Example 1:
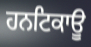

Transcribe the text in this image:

ਹਨਟਿਕਾਊ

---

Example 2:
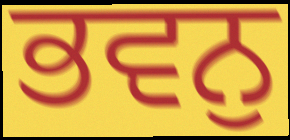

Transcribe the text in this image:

ਭਵਨੁ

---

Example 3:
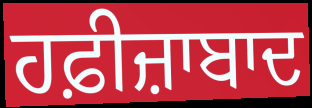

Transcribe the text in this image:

ਹਫ਼ੀਜ਼ਾਬਾਦ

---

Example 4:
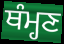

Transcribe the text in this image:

ਥੰਮ੍ਹਣ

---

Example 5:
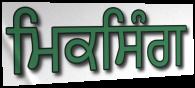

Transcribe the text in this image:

ਮਿਕਸਿੰਗ